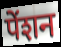
पेंशन